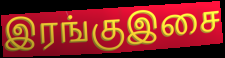
இரங்குஇசை